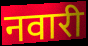
नवारी